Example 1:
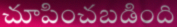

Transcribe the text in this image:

చూపించబడింది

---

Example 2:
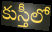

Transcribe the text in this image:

కుస్తీలో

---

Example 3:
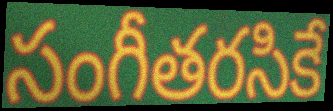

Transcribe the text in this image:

సంగీతరసికే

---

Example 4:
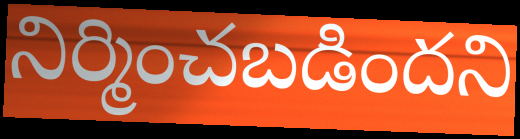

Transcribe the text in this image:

నిర్మించబడిందని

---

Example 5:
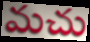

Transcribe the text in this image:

మచు